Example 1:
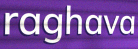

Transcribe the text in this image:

raghava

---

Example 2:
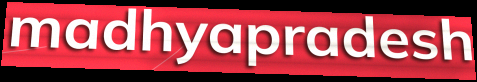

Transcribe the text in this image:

madhyapradesh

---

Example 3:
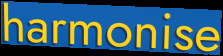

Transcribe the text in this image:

harmonise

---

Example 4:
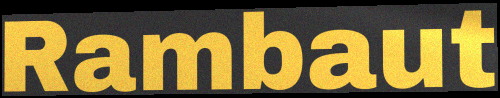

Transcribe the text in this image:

Rambaut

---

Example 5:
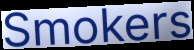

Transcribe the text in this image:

Smokers